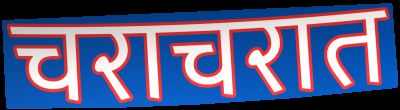
चराचरात